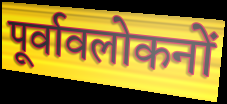
पूर्वावलोकनों